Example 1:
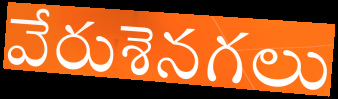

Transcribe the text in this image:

వేరుశెనగలు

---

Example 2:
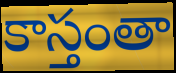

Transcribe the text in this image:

కాస్తంతా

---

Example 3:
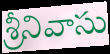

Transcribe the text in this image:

శ్రీనివాసు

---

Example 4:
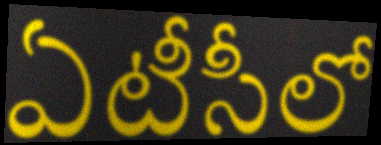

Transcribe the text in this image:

ఏటీసీలో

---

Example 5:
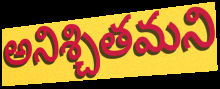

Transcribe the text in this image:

అనిశ్చితమని